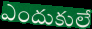
ఎందుకులే